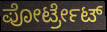
ಪೋರ್ಟ್ರೇಟ್